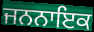
ਜਨਨਾਇਕ